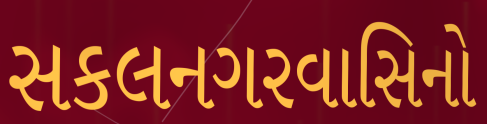
સકલનગરવાસિનો